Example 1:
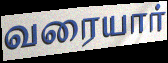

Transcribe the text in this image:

வரையார்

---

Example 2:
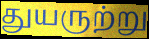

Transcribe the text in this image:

துயருற்று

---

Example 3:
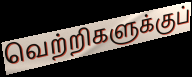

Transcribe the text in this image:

வெற்றிகளுக்குப்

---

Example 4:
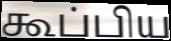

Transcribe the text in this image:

கூப்பிய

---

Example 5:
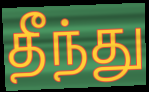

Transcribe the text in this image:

தீந்து